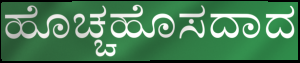
ಹೊಚ್ಚಹೊಸದಾದ